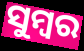
ସୁମ୍ବର